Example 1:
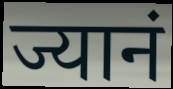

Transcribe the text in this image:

ज्यानं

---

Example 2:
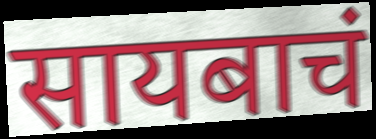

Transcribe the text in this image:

सायबाचं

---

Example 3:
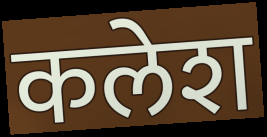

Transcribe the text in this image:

कलेश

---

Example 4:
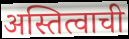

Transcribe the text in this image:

अस्तित्वाची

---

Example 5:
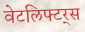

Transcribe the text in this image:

वेटलिफ्टर्स